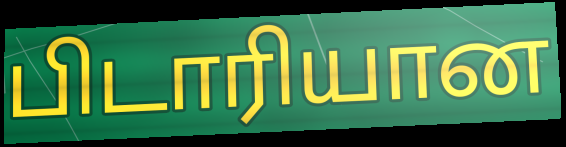
பிடாரியான